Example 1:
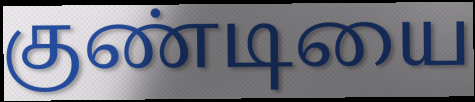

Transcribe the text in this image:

குண்டியை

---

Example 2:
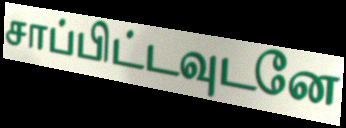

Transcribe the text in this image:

சாப்பிட்டவுடனே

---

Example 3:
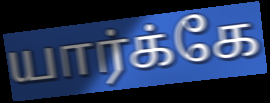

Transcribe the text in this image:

யார்க்கே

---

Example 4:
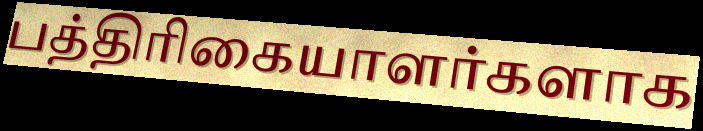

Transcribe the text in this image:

பத்திரிகையாளர்களாக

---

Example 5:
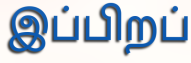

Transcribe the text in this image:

இப்பிறப்